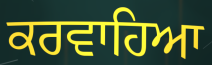
ਕਰਵਾਹਿਆ